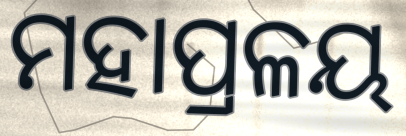
ମହାପ୍ରଳୟ